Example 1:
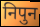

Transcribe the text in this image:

निपुन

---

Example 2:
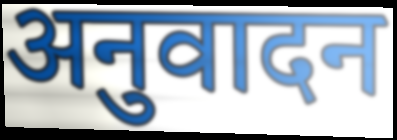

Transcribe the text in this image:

अनुवादन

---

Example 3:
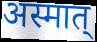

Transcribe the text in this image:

अस्मात्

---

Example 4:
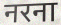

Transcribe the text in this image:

नरना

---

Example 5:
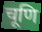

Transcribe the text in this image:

चूणि